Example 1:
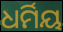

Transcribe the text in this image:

ଧର୍ମିୟ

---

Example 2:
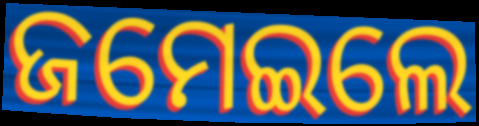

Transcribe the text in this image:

ଜମେଇଲେ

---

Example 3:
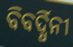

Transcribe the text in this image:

ବିବର୍ଦ୍ଧିନୀ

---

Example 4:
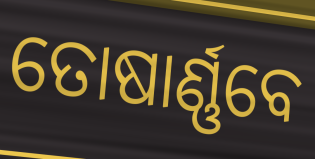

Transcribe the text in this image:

ତୋଷାର୍ଣ୍ଣବେ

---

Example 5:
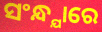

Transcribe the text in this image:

ସଂନ୍ଧ୍ଯାରେ